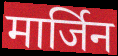
मार्जिन